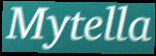
Mytella